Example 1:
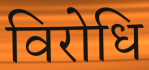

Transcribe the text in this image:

विरोधि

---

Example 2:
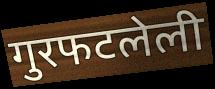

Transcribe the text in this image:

गुरफटलेली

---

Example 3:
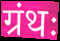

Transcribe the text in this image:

ग्रंथः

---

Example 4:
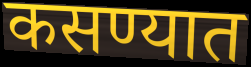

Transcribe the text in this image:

कसण्यात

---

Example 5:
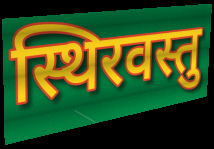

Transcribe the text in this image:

स्थिरवस्तु